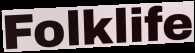
Folklife